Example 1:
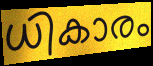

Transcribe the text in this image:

ധികാരം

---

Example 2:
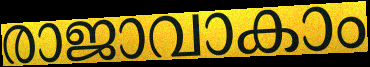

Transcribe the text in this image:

രാജാവാകാം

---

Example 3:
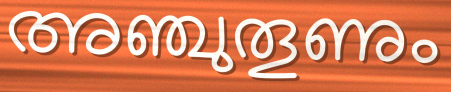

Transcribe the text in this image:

അഞ്ചുതൂണും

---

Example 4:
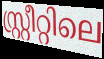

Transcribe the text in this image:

സ്റ്റ്രീറ്റിലെ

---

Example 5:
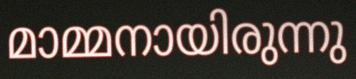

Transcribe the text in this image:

മാമ്മനായിരുന്നു